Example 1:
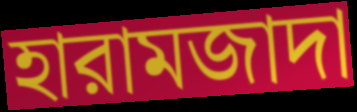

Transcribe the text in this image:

হারামজাদা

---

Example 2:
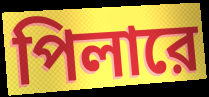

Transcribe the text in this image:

পিলারে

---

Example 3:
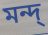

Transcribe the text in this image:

মন্দ্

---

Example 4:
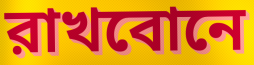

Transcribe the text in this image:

রাখবোনে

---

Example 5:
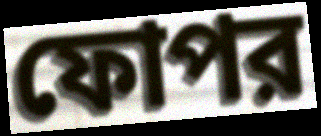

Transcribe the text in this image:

ফোপর